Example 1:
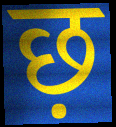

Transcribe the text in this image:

छ़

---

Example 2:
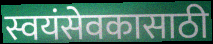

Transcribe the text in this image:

स्वयंसेवकासाठी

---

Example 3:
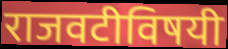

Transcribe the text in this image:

राजवटीविषयी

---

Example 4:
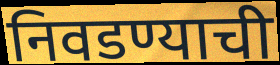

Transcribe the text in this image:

निवडण्याची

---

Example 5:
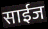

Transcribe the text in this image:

साईज